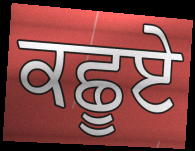
ਕਛੂਏ